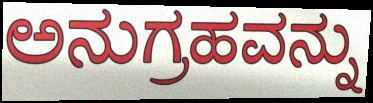
ಅನುಗ್ರಹವನ್ನು